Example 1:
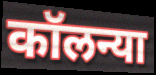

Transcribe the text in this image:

कॉलन्या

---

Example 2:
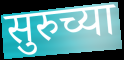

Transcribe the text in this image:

सुरुच्या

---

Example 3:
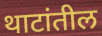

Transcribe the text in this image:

थाटांतील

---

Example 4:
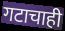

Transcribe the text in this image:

गटाचाही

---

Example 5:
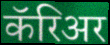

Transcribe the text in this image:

कॅरिअर